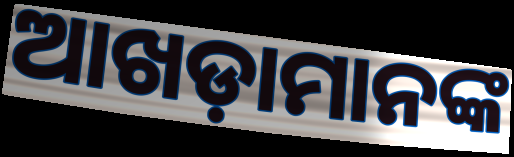
ଆଖଡ଼ାମାନଙ୍କ